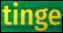
tinge